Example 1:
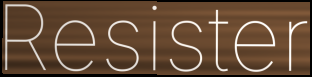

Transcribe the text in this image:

Resister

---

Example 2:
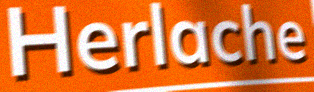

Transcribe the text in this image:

Herlache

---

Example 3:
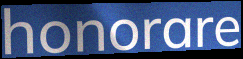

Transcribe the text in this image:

honorare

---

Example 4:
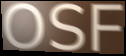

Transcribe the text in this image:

OSF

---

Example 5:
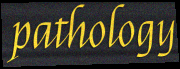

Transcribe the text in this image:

pathology